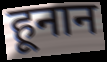
हूनान